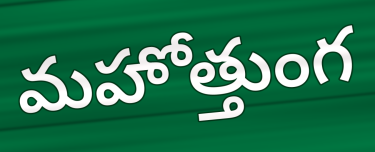
మహోత్తుంగ